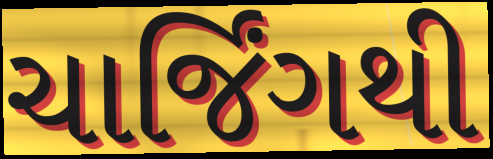
ચાર્જિંગથી